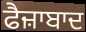
ਫੈਜ਼ਾਬਾਦ